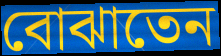
বোঝাতেন